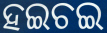
ହଇଚଇ